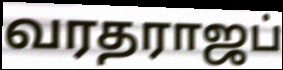
வரதராஜப்